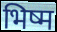
भिष्म